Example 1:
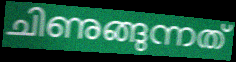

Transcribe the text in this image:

ചിണുങ്ങുന്നത്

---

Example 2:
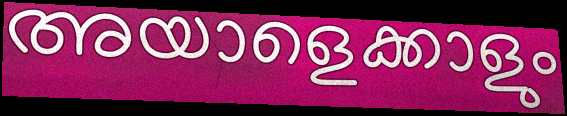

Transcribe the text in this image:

അയാളെക്കാളും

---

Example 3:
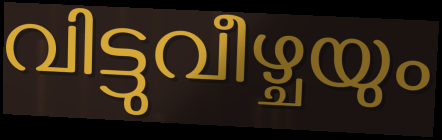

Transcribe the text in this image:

വിട്ടുവീഴ്ചയും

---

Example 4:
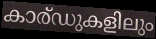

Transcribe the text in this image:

കാര്ഡുകളിലും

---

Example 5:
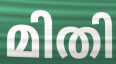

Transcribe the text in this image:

മിതി